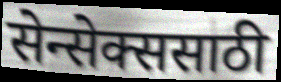
सेन्सेक्ससाठी